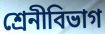
শ্রেনীবিভাগ